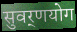
सुवर्णयोग